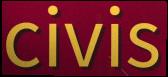
civis